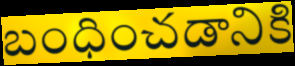
బంధించడానికి